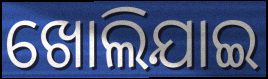
ଖୋଲିଯାଇ